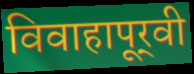
विवाहापूर्वी